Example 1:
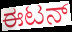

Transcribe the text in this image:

ಈಟನ್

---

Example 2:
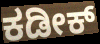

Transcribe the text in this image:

ಕಡೀಕ್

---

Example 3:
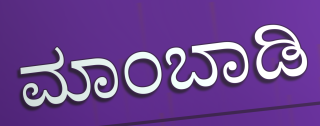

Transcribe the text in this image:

ಮಾಂಬಾಡಿ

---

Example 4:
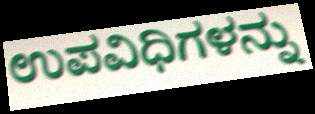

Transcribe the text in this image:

ಉಪವಿಧಿಗಳನ್ನು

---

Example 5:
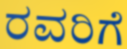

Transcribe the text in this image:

ರವರಿಗೆ